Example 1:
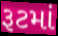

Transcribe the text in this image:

રૂટમાં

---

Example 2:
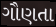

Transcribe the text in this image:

ગૌણતા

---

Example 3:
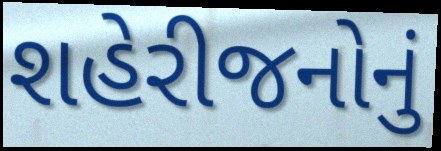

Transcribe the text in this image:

શહેરીજનોનું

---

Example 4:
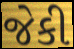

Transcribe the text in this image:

જેકી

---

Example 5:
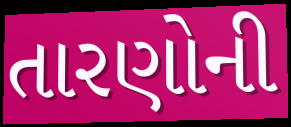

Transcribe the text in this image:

તારણોની